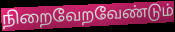
நிறைவேறவேண்டும்